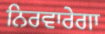
ਨਿਰਵਾਰੇਗਾ